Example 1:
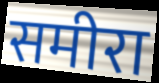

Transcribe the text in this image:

समीरा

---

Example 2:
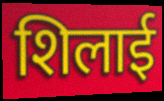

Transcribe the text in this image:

शिलाई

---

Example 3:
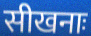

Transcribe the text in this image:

सीखनाः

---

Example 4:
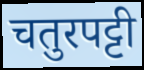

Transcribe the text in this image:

चतुरपट्टी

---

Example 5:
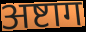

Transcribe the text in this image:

अष्टाग